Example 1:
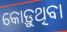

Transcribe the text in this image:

କୋଡ଼ୁଥିବା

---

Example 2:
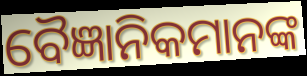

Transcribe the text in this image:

ବୈଜ୍ଞାନିକମାନଙ୍କ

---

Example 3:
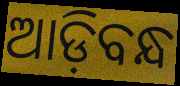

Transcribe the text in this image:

ଆଡ଼ିବନ୍ଧ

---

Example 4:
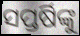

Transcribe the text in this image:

ସପ୍ତର୍ଷିଙ୍କୁ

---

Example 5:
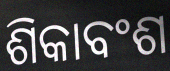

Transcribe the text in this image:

ଶିକାବଂଶ